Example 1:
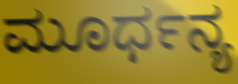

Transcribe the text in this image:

ಮೂರ್ಧನ್ಯ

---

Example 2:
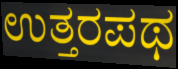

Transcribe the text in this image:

ಉತ್ತರಪಥ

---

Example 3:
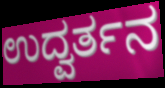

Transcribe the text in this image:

ಉದ್ವರ್ತನ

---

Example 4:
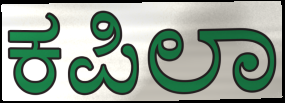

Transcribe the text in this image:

ಕಪಿಲಾ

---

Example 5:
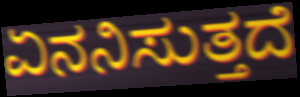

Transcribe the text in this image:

ಏನನಿಸುತ್ತದೆ